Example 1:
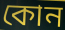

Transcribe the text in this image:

কোন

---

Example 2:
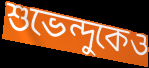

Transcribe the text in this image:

শুভেন্দুকেও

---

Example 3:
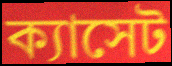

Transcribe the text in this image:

ক্যাসেট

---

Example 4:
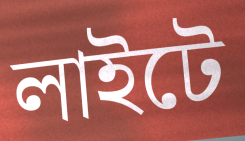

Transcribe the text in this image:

লাইটে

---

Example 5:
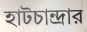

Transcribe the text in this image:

হাটচান্দ্রার